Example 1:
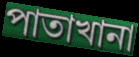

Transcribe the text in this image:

পাতাখানা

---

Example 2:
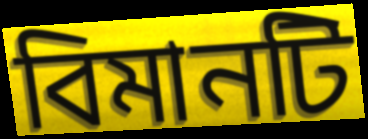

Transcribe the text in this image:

বিমানটি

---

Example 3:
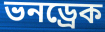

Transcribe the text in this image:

ভনড্রেক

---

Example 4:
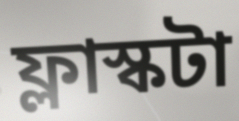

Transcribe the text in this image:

ফ্লাস্কটা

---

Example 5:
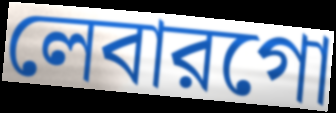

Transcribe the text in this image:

লেবারগো